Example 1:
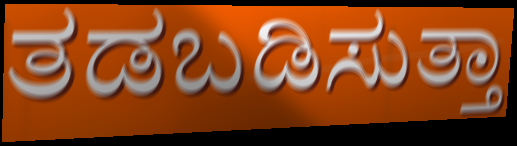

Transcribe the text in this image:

ತಡಬಡಿಸುತ್ತಾ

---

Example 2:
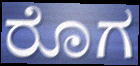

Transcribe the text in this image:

ರೊಗ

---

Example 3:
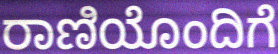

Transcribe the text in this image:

ರಾಣಿಯೊಂದಿಗೆ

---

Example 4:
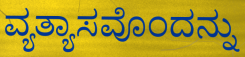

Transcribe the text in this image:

ವ್ಯತ್ಯಾಸವೊಂದನ್ನು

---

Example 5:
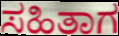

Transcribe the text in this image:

ಸಹಿತಾಗ